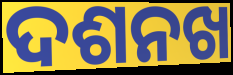
ଦଶନଖ